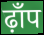
ढ़ाँप